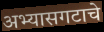
अभ्यासगटाचे